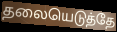
தலையெடுத்தே